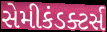
સેમીકંડક્ટર્સ